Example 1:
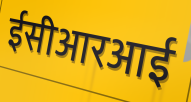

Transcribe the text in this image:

ईसीआरआई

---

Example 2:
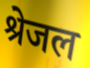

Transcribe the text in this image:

श्रेजल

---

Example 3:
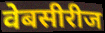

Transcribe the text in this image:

वेबसीरीज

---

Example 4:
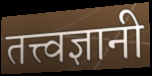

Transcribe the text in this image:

तत्त्वज्ञानी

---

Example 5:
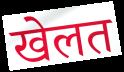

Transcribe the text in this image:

खेलत